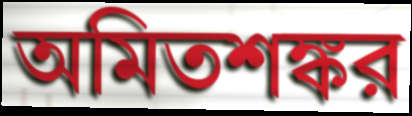
অমিতশঙ্কর